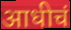
आधीचं